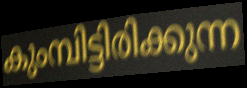
കുംമ്പിട്ടിരിക്കുന്ന